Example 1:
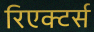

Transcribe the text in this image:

रिएक्टर्स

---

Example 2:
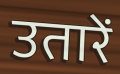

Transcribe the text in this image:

उतारें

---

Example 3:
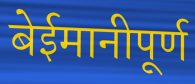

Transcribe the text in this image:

बेईमानीपूर्ण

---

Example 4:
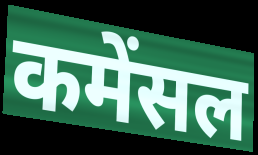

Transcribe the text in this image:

कमेंसल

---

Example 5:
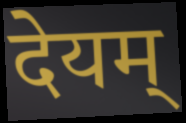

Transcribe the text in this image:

देयम्